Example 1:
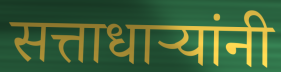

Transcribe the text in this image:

सत्ताधाऱ्यांनी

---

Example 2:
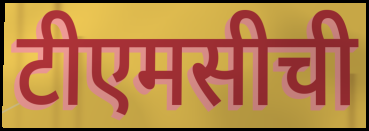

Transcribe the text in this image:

टीएमसीची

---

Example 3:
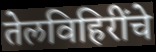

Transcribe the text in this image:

तेलविहिरींचे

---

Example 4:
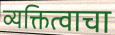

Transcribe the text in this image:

व्यक्तित्वाचा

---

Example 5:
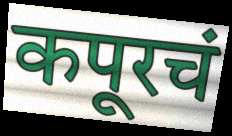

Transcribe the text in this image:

कपूरचं